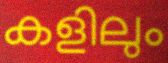
കളിലും